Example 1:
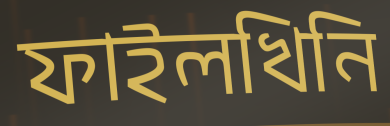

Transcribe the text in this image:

ফাইলখিনি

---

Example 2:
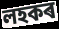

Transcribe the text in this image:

লহকৰ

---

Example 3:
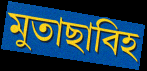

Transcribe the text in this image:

মুতাছাবিহ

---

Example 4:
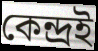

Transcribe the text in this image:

কেন্দ্ৰই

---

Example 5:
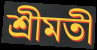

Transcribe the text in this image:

শ্ৰীমতী